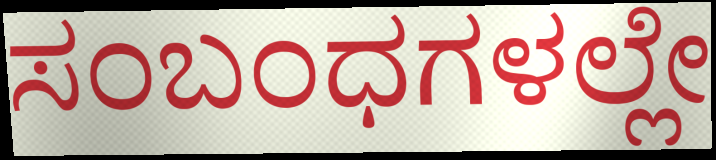
ಸಂಬಂಧಗಳಲ್ಲೇ